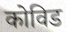
कोविड